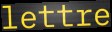
lettre